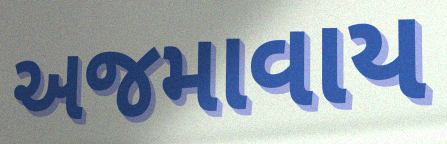
અજમાવાય